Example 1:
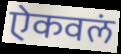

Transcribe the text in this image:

ऐकवलं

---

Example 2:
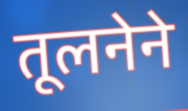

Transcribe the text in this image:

तूलनेने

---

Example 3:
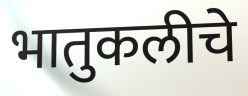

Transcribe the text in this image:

भातुकलीचे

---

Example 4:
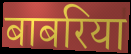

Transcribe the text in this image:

बाबरिया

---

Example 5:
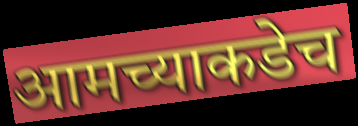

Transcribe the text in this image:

आमच्याकडेच